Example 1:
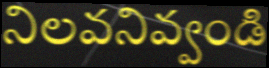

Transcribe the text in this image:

నిలవనివ్వండి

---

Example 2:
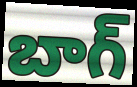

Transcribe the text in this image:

బాగ్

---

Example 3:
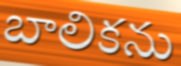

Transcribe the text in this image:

బాలికను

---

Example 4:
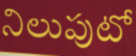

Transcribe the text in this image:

నిలుపుటో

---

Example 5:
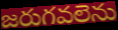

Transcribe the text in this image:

జరుగవలెను